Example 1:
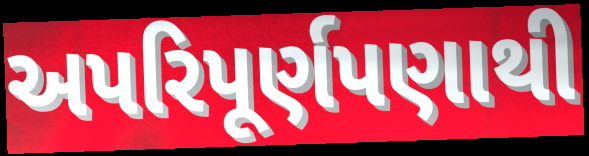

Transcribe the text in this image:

અપરિપૂર્ણપણાથી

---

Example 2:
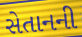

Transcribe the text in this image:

સેતાનની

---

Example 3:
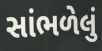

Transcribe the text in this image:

સાંભળેલું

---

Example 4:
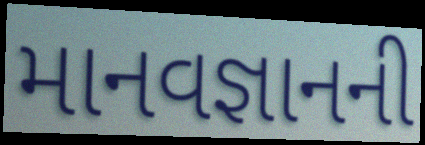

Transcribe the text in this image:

માનવજ્ઞાનની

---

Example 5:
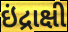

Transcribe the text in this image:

ઇંદ્રાક્ષી